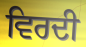
ਵਿਰਦੀ